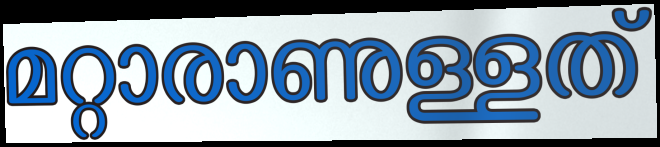
മറ്റാരാണുള്ളത്